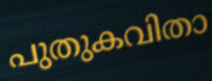
പുതുകവിതാ